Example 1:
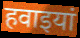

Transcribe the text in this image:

हवाइयां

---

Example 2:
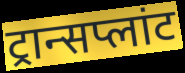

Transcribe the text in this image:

ट्रान्सप्लांट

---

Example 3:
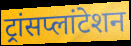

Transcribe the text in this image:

ट्रांसप्लांटेशन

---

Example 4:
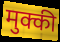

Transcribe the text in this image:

मुक्की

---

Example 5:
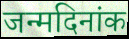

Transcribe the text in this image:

जन्मदिनांक